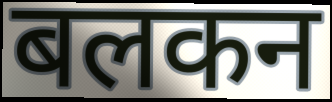
बलकन